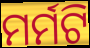
ମର୍ମଟି